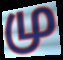
மு